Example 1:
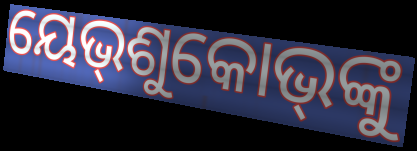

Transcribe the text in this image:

ୟେଭ୍‌ଶୁକୋଭ୍‌ଙ୍କୁ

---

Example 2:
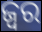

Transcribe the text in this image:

ଜ୍ବର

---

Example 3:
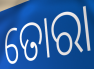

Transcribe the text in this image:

ତୋରା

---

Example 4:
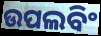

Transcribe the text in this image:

ଉପଲବିଂ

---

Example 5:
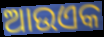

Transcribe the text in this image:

ଆଉଏକ